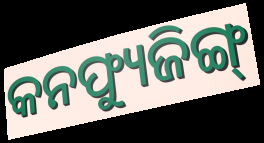
କନଫ୍ୟୁଜିଙ୍ଗ୍